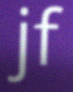
jf